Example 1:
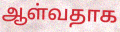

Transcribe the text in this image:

ஆள்வதாக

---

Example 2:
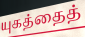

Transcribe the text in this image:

யுகத்தைத்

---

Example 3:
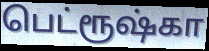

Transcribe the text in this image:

பெட்ரூஷ்கா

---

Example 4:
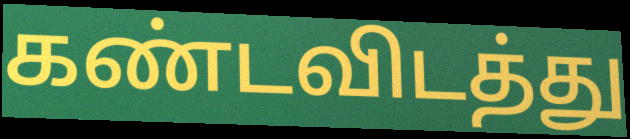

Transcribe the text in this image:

கண்டவிடத்து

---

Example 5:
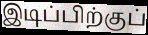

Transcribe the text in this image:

இடிப்பிற்குப்